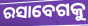
ରସାବେଗକୁ